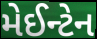
મેઈન્ટેન